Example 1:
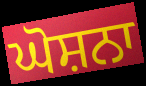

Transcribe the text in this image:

ਘੋਸ਼ਨਾ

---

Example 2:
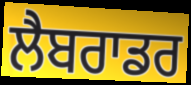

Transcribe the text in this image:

ਲੈਬਰਾਡਰ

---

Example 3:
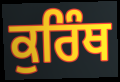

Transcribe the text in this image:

ਕੁਰਿੰਥ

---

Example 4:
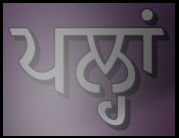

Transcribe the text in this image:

ਪਲ੍ਹਾਂ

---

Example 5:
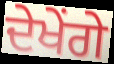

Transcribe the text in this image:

ਦੇਖੇਂਗੇ